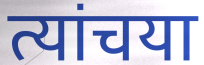
त्यांचया